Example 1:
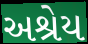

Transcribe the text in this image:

અશ્રેય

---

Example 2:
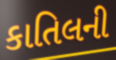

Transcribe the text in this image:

કાતિલની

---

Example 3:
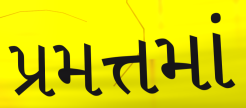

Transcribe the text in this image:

પ્રમત્તમાં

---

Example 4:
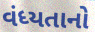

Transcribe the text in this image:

વંધ્યતાનો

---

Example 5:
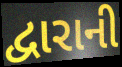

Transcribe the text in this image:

દ્વારાની